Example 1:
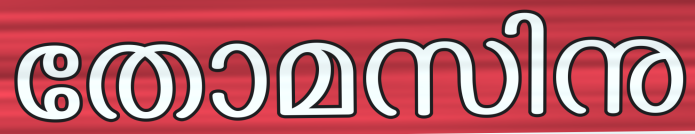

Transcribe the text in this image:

തോമസിനു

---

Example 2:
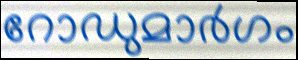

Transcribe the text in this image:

റോഡുമാർഗം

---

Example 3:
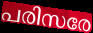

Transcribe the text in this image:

പരിസരേ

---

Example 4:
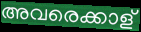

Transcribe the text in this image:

അവരെക്കാള്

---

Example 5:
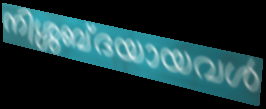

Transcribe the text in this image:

നിശ്ശബ്ദയായവൾ